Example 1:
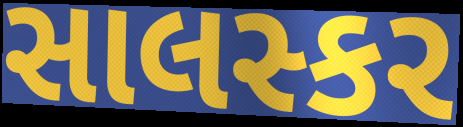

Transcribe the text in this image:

સાલસ્કર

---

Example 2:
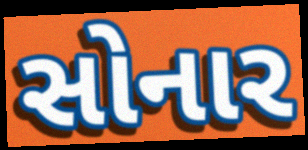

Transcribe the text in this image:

સોનાર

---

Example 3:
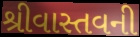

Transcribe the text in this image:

શ્રીવાસ્તવની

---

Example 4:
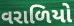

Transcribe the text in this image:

વરાળિયો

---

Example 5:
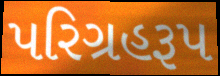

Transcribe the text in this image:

પરિગ્રહરૂપ